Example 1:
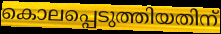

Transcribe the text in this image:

കൊലപ്പെടുത്തിയതിന്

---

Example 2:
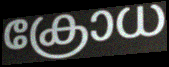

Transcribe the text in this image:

ക്രോധ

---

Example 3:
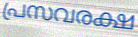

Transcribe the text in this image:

പ്രസവരക്ഷ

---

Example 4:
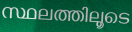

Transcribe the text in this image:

സ്ഥലത്തിലൂടെ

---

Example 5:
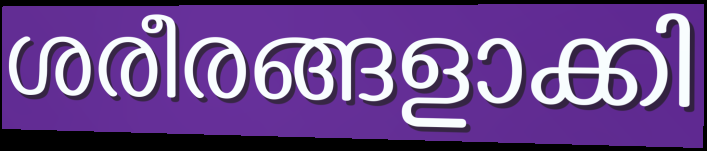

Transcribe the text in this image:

ശരീരങ്ങളാക്കി